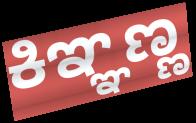
ಕಿಞ್ಞಣ್ಣ